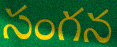
సంగన